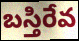
బస్తిరేవ